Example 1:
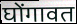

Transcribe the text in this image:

घोंगावत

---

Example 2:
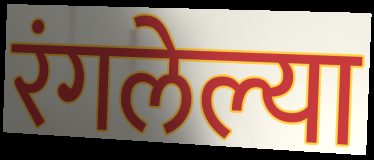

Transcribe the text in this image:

रंगलेल्या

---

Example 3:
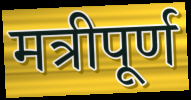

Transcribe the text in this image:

मत्रीपूर्ण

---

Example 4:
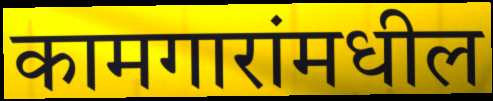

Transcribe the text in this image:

कामगारांमधील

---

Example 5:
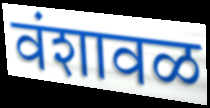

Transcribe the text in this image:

वंशावळ